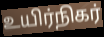
உயிர்நிகர்